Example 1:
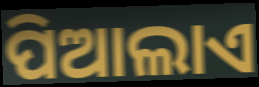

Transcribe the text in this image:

ପିଆଲାଏ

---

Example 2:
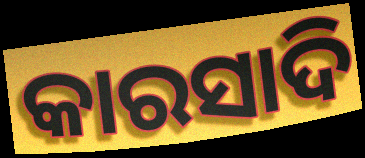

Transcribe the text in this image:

କାରସାଦି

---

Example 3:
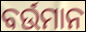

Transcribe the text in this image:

ବର୍ଉମାନ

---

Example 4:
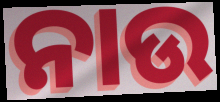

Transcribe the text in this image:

ନାଉ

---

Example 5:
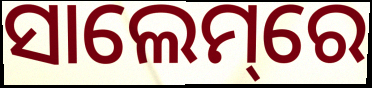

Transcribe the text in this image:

ସାଲେମ୍‌ରେ